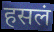
हसलं